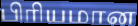
பிரியமான